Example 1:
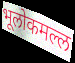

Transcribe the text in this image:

भूलोकमल्ल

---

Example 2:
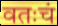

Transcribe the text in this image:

वतःचं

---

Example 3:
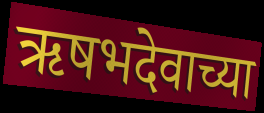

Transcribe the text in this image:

ऋषभदेवाच्या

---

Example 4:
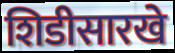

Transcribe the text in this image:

शिडीसारखे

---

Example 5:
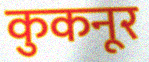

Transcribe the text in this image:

कुकनूर